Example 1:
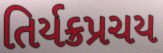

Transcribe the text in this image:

તિર્યક્રપ્રચય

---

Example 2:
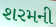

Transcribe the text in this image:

શરમની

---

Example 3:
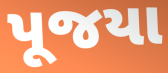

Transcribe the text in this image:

પૂજયા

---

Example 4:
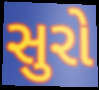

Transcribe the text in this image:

સુરો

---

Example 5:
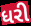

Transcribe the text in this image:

ધરી